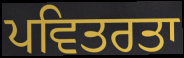
ਪਵਿਤਰਤਾ